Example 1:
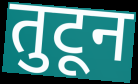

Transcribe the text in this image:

तुटून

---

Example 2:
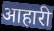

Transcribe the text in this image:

आहारी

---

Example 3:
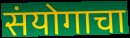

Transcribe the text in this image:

संयोगाचा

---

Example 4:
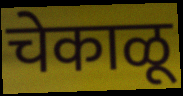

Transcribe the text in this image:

चेकाळू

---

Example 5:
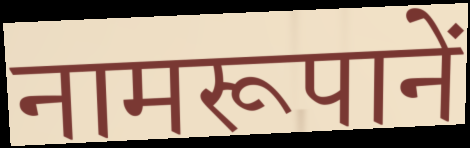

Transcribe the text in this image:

नामरूपानें